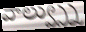
వాల్వ్స్ను